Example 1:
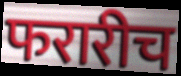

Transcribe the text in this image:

फरारीच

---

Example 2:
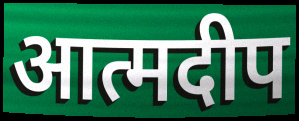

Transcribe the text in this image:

आत्मदीप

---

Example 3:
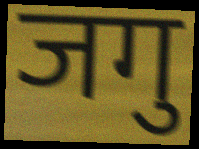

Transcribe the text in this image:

जगु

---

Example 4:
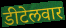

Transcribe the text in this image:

डीटेलवार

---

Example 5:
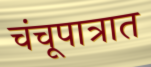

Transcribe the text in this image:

चंचूपात्रात